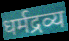
धर्मद्रव्य